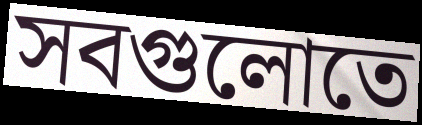
সবগুলোতে